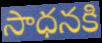
సాధనకి